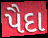
પૈદા